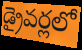
డ్రైవర్లలో